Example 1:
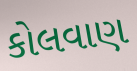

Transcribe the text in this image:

કોલવાણ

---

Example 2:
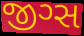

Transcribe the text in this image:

જીગ્સ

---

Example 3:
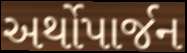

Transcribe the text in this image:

અર્થોપાર્જન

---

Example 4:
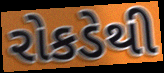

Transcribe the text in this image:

રોકડેથી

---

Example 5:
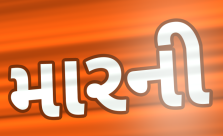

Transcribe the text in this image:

મારની